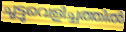
ചൂട്ടുവെളിച്ചത്തിൽ